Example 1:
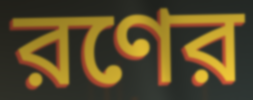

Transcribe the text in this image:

রণের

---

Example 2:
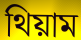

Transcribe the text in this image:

থিয়াম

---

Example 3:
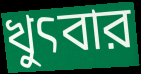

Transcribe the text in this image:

খুৎবার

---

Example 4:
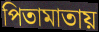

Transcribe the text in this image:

পিতামাতায়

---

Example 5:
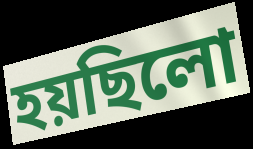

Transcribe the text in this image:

হয়ছিলো